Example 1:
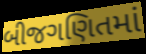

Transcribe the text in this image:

બીજગણિતમાં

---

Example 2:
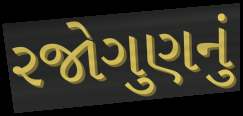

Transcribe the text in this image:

રજોગુણનું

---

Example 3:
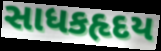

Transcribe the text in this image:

સાધકહૃદય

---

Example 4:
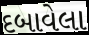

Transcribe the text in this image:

દબાવેલા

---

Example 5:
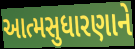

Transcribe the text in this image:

આત્મસુધારણાને